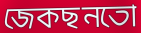
জেকছনতো